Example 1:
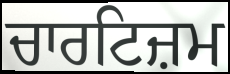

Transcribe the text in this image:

ਚਾਰਟਿਜ਼ਮ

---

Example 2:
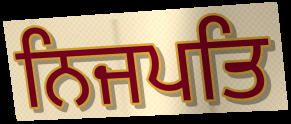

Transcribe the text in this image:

ਨਿਜਪਤਿ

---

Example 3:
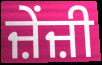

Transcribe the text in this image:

ਜ਼ੇਂਜ਼ੀ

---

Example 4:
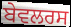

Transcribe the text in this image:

ਬੇਵਲਰਸ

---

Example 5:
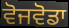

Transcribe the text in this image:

ਵੋਜਵੋਡਾ